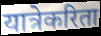
यात्रेकरिता